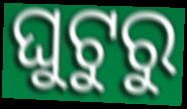
ଘୁଟୁରୁ